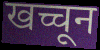
खच्चून